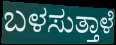
ಬಳಸುತ್ತಾಳೆ